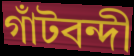
গাঁটবন্দী